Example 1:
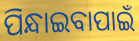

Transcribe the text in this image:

ପିନ୍ଧାଇବାପାଇଁ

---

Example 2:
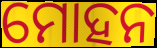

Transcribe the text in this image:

ମୋହନ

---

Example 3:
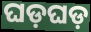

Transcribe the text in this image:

ଘଡ଼ଘଡ଼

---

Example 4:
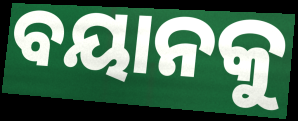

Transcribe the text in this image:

ବୟାନକୁ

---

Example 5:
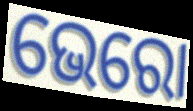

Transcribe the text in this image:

ଭେରୋ